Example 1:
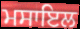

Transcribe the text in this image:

ਮਸਾਇਲ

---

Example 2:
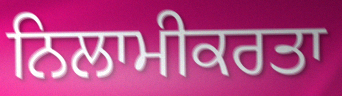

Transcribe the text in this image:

ਨਿਲਾਮੀਕਰਤਾ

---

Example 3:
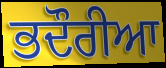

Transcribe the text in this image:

ਭਦੌਰੀਆ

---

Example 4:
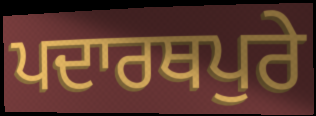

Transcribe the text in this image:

ਪਦਾਰਥਪੁਰੇ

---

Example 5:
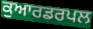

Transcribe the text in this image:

ਕੁਆਰਡਰਪਲ